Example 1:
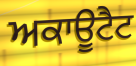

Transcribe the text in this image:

ਅਕਾਊਟੈਟ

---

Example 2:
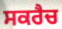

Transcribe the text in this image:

ਸਕਰੈਚ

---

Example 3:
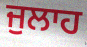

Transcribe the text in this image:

ਜੁਲਾਹ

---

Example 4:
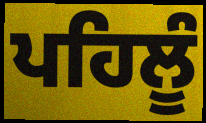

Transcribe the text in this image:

ਪਹਿਲੂੰ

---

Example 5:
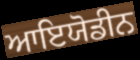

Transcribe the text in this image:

ਆਇਯੋਡੀਨ